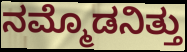
ನಮ್ಮೊಡನಿತ್ತು